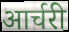
आर्चरी